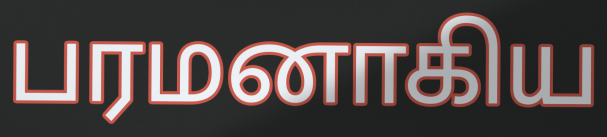
பரமனாகிய